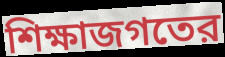
শিক্ষাজগতের